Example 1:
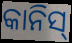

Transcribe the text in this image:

କାନିସ୍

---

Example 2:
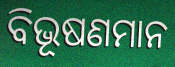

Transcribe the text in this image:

ବିଭୂଷଣମାନ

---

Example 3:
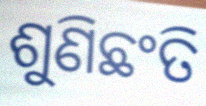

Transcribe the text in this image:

ଶୁଣିଛଂତି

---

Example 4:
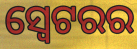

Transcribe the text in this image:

ସ୍ୱେଟରର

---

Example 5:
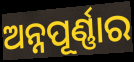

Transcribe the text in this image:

ଅନ୍ନପୂର୍ଣ୍ଣାର